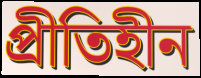
প্রীতিহীন